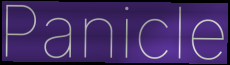
Panicle